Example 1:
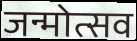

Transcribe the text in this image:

जन्मोत्सव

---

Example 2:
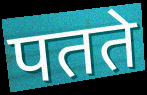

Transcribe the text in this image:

पतते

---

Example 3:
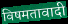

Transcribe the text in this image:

विषमतावादी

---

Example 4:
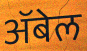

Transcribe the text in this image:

ॲबेल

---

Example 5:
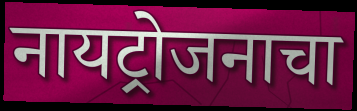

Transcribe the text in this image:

नायट्रोजनाचा